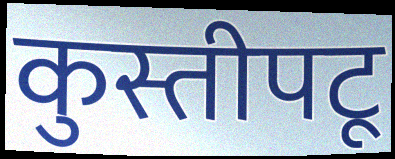
कुस्तीपटू